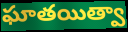
ఘాతయిత్వా